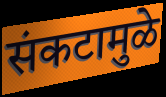
संकटामुळे